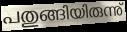
പതുങ്ങിയിരുന്നു്